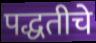
पद्धतीचे